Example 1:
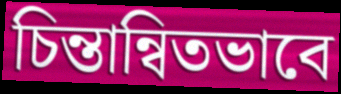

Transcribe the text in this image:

চিন্তান্বিতভাবে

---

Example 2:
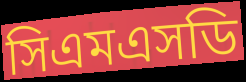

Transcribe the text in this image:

সিএমএসডি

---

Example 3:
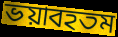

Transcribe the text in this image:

ভয়াবহতম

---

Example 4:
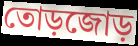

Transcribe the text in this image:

তোড়জোড়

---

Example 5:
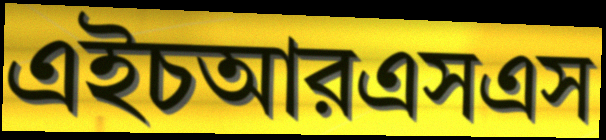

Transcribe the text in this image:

এইচআরএসএস